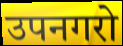
उपनगरो